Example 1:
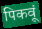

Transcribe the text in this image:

पिकवूं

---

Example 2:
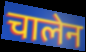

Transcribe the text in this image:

चालेन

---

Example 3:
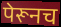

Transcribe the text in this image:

पेरूनच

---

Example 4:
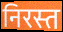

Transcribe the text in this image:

निरस्त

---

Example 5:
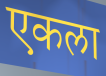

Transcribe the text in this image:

एकला